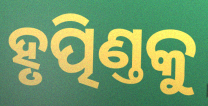
ହୃତ୍ପିଣ୍ତକୁ